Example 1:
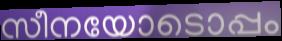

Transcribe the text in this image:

സീനയോടൊപ്പം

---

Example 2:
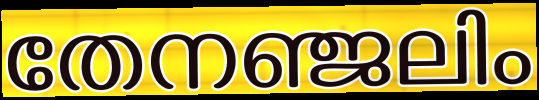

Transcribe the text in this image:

തേനഞ്ജലിം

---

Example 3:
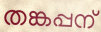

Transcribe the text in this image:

തങ്കപ്പന്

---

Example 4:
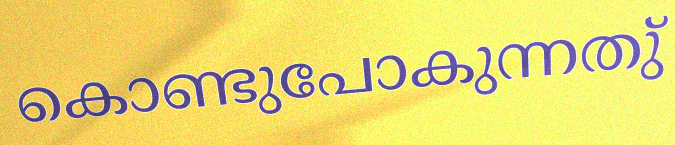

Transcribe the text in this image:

കൊണ്ടുപോകുന്നതു്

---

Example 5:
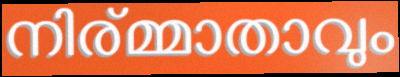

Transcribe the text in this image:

നിര്മ്മാതാവും